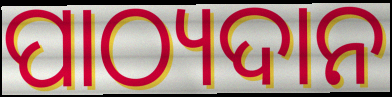
ପାଠ୍ୟଦାନ